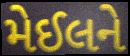
મેઈલને